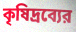
কৃষিদ্রব্যের